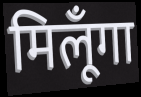
मिलूँगा